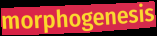
morphogenesis